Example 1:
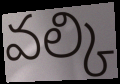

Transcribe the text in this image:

వల్కి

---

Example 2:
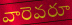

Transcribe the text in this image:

వారెవరూ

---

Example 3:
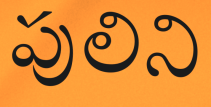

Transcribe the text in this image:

పులిని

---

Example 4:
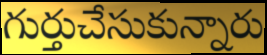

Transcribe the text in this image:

గుర్తుచేసుకున్నారు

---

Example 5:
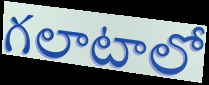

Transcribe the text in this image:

గలాటాలో